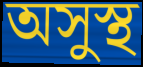
অসুস্থ